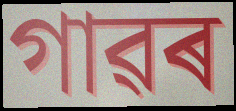
গাৱৰ